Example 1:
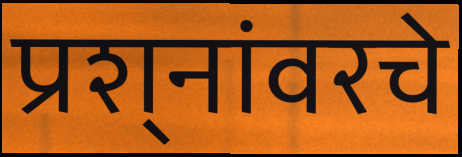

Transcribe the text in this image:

प्रश्नांवरचे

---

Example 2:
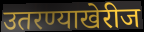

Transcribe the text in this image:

उतरण्याखेरीज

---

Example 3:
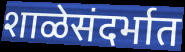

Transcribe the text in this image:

शाळेसंदर्भात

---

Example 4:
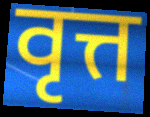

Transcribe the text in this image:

वृत्त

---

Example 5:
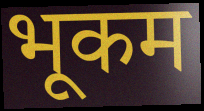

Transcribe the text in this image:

भूकम